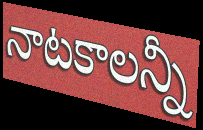
నాటకాలన్నీ